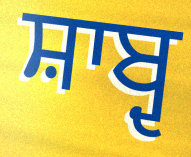
ਸ਼ਾਬ੍ਦ